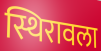
स्थिरावला